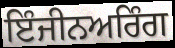
ਇੰਜੀਨਅਰਿੰਗ